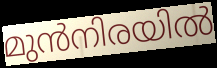
മുൻനിരയിൽ